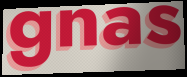
gnas